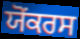
ਯੋੰਕਰਸ